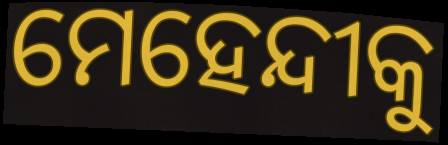
ମେହେନ୍ଦୀକୁ